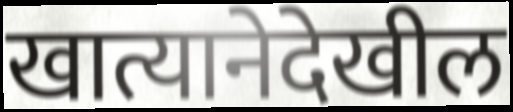
खात्यानेदेखील